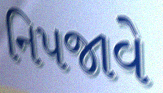
નિપજાવે